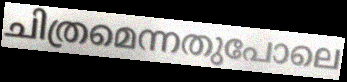
ചിത്രമെന്നതുപോലെ